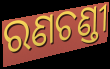
ରଣଚଣ୍ଡୀ